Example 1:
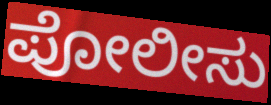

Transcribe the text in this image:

ಪೋಲೀಸು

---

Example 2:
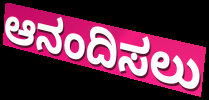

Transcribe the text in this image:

ಆನಂದಿಸಲು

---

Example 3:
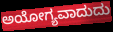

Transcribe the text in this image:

ಅಯೋಗ್ಯವಾದುದು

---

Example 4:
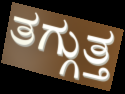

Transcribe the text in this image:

ತಗ್ಗುತ್ತ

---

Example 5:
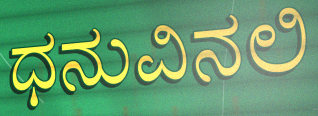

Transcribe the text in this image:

ಧನುವಿನಲಿ